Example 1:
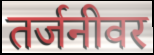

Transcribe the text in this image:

तर्जनीवर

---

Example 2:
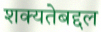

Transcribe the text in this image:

शक्यतेबद्दल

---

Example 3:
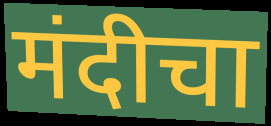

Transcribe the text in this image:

मंदीचा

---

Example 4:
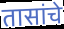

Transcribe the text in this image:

तासांचे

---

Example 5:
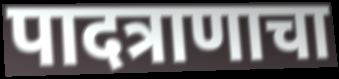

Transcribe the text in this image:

पादत्राणाचा